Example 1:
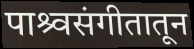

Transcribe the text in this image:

पाश्र्वसंगीतातून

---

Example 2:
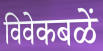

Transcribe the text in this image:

विवेकबळें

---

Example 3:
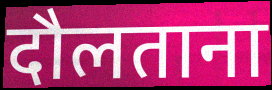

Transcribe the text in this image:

दौलताना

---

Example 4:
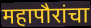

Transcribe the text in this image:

महापौरांचा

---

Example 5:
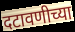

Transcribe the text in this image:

दटावणीच्या